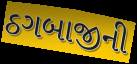
ઠગબાજીની